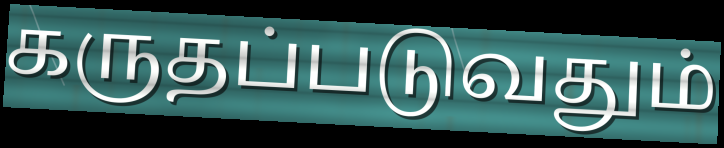
கருதப்படுவதும்